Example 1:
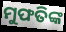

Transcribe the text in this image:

ମୁଫତିଙ୍କ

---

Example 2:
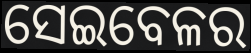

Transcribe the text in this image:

ସେଇବେଳର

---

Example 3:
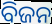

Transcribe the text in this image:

ବିଜନ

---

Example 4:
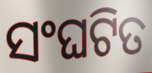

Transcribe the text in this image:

ସଂଘଟିତ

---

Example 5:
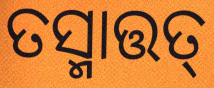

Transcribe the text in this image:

ତସ୍ମାତ୍ତତ୍